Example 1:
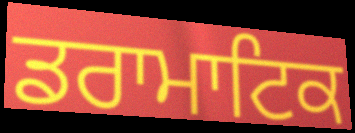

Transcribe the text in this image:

ਡਰਾਮਾਟਿਕ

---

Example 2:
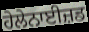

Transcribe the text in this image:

ਹੇਲੇਨਾਈਜ਼ਡ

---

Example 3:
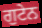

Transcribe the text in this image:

ਗੁਟੇਨ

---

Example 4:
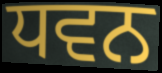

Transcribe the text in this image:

ਧਵਨ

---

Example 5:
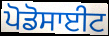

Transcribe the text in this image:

ਪੋਡੋਸਾਈਟ